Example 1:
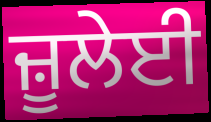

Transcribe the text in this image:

ਜ਼ੂਲੇਈ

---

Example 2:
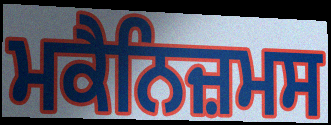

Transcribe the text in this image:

ਮਕੈਨਿਜ਼ਮਸ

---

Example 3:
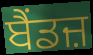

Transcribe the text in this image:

ਬੈਂਡਜ਼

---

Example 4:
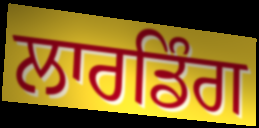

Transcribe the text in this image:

ਲਾਰਡਿੰਗ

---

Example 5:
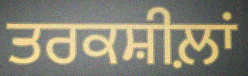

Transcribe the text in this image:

ਤਰਕਸ਼ੀਲ਼ਾਂ